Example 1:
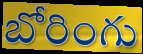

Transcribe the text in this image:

బోరింగు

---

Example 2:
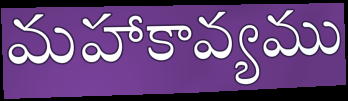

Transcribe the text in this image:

మహాకావ్యము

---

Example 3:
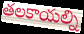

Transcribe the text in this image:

తలకాయల్ని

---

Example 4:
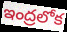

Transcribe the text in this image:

ఇంద్రలోక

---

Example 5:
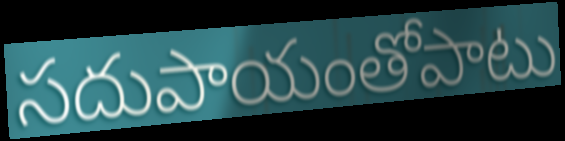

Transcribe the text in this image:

సదుపాయంతోపాటు